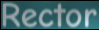
Rector